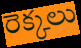
రెక్కలు